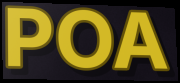
POA